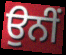
ਉਨੀਂ